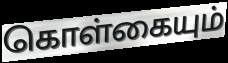
கொள்கையும்